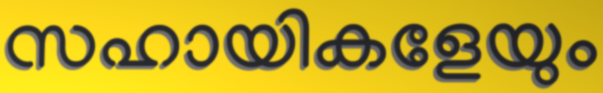
സഹായികളേയും